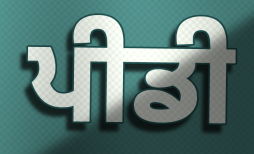
ਪੀਡੀ